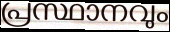
പ്രസ്ഥാനവും